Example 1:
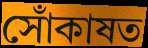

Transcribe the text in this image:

সোঁকাষত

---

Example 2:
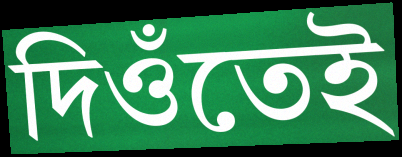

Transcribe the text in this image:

দিওঁতেই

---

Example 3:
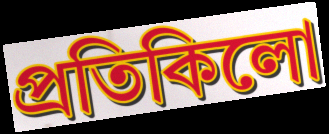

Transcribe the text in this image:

প্ৰতিকিলো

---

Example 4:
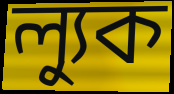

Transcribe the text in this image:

ল্যুক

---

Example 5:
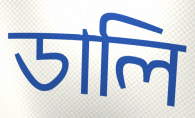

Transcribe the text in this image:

ডালি